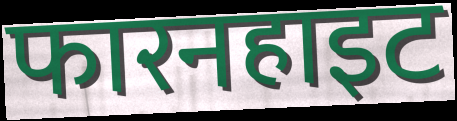
फारनहाइट